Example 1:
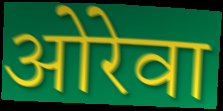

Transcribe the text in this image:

ओरेवा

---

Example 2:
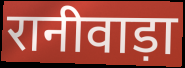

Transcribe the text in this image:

रानीवाड़ा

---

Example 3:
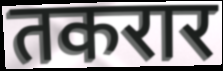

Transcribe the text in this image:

तकरार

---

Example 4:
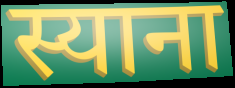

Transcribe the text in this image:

स्याना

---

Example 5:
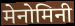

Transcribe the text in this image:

मेनोमिनी